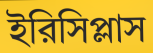
ইরিসিপ্লাস